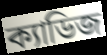
ক্যাডিজ